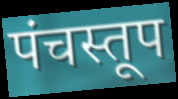
पंचस्तूप